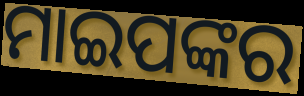
ମାଇପଙ୍କର